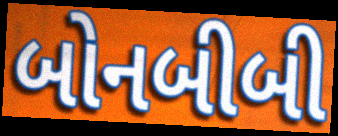
બોનબીબી